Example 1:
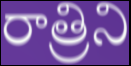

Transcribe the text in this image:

రాత్రిని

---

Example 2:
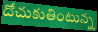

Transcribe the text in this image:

దోచుకుతింటున్న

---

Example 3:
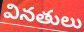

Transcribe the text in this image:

వినతులు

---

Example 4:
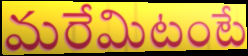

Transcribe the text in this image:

మరేమిటంటే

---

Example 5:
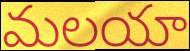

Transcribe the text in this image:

మలయా